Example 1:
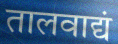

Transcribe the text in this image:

तालवाद्यं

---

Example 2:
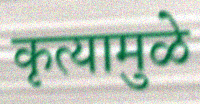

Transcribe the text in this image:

कृत्यामुळे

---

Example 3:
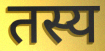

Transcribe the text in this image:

तस्य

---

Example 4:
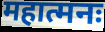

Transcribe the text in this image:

महात्मनः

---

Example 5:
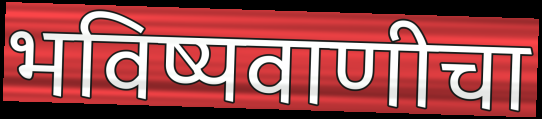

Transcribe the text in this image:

भविष्यवाणीचा